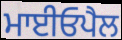
ਮਾਈਓਪੈਲ